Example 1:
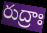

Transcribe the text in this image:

రుద్రాః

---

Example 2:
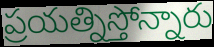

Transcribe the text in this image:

ప్రయత్నిస్తోన్నారు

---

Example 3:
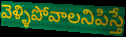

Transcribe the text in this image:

వెళ్ళిపోవాలనిపిస్తే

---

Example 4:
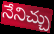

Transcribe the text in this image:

నేనిచ్చు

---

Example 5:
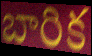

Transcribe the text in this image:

బారిక